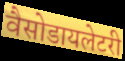
वैसोडायलेटरी